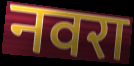
नवरा